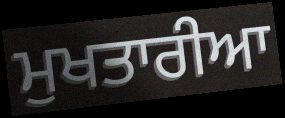
ਮੁਖਤਾਰੀਆ